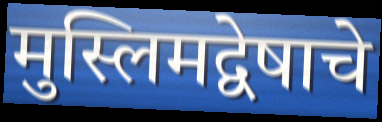
मुस्लिमद्वेषाचे